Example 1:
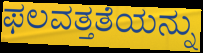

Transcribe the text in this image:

ಫಲವತ್ತತೆಯನ್ನು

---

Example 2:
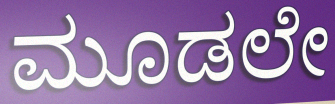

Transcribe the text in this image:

ಮೂಡಲೇ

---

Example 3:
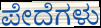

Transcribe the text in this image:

ಪೇದೆಗಳು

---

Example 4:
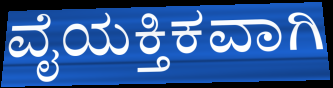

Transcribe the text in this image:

ವೈಯಕ್ತಿಕವಾಗಿ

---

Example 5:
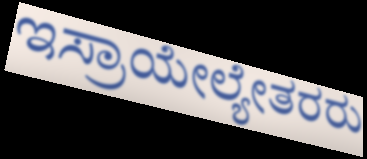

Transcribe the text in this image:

ಇಸ್ರಾಯೇಲ್ಯೇತರರು